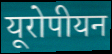
यूरोपीयन